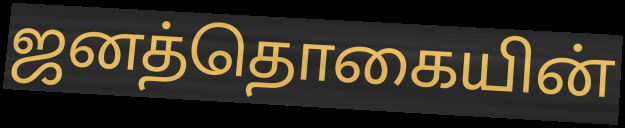
ஜனத்தொகையின்